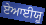
ਏਆਈਯੂ